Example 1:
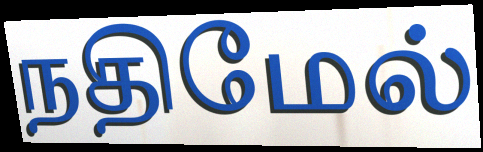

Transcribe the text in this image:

நதிமேல்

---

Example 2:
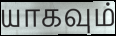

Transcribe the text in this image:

யாகவும்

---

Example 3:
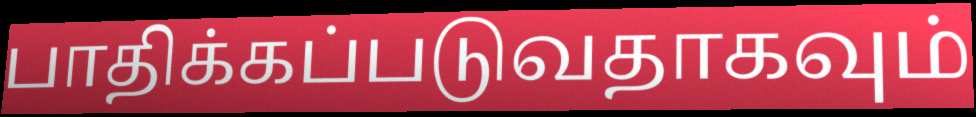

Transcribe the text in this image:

பாதிக்கப்படுவதாகவும்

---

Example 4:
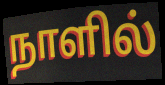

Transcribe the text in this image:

நாளில்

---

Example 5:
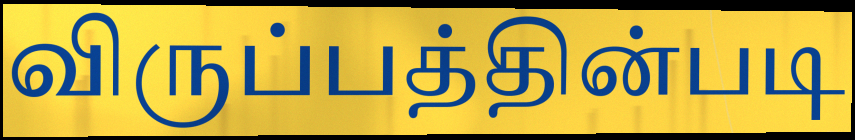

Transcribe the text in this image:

விருப்பத்தின்படி